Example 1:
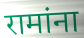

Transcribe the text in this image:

रामांना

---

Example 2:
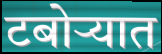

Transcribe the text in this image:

टबोऱ्यात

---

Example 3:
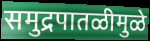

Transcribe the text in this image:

समुद्रपातळीमुळे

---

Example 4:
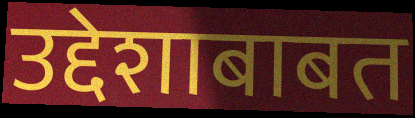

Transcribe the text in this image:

उद्देशाबाबत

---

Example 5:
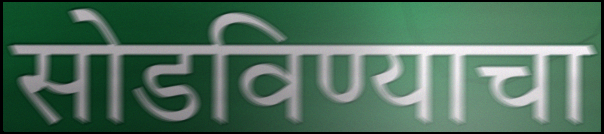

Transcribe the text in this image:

सोडविण्याचा